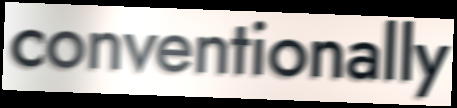
conventionally